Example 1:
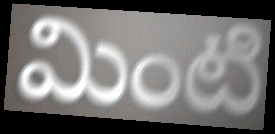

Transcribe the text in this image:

మింటి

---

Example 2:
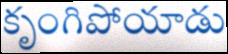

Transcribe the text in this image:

కృంగిపోయాడు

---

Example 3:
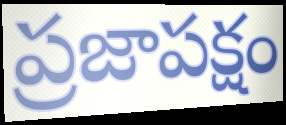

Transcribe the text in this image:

ప్రజాపక్షం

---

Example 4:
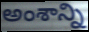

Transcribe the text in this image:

అంశాన్ని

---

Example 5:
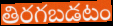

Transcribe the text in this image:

తిరగబడటం